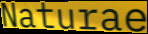
Naturae